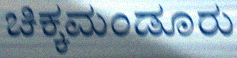
ಚಿಕ್ಕಮಂಡೂರು